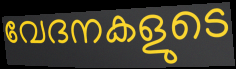
വേദനകളുടെ